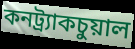
কনট্র্যাকচুয়াল